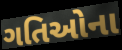
ગતિઓના